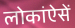
लोकांऐसें